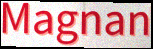
Magnan